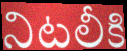
నిటలీకి